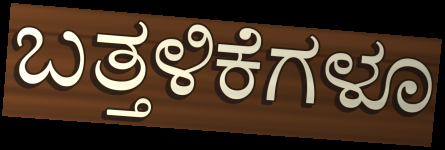
ಬತ್ತಳಿಕೆಗಳೂ